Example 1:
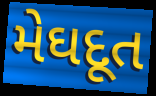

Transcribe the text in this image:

મેઘદૂત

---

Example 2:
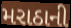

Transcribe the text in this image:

મરાઠાની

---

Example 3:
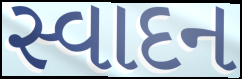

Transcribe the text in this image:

સ્વાદન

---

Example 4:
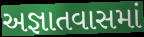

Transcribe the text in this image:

અજ્ઞાતવાસમાં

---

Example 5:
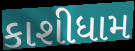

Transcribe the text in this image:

કાશીધામ